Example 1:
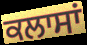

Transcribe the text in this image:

ਕਲਾਸਾਂ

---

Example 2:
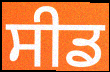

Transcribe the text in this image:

ਸੀਡ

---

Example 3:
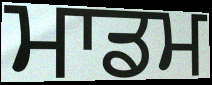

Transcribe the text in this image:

ਮਾਡਮ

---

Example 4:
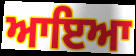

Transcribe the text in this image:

ਆਇਆ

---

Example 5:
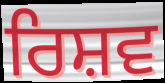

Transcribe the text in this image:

ਰਿਸ਼ਵ